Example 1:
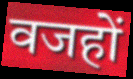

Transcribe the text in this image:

वजहों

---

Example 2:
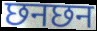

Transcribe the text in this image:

छनछन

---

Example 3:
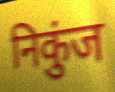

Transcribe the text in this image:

निकुंज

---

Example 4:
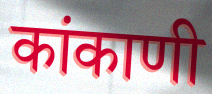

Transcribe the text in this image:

कांकाणी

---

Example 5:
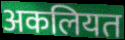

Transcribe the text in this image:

अकलियत